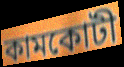
কামকোটী